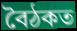
বৈঠকত